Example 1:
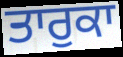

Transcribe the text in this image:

ਤਾਰੁਕਾ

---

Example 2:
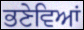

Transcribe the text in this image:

ਭਣੇਵਿਆਂ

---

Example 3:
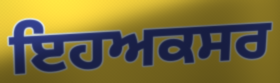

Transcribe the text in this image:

ਇਹਅਕਸਰ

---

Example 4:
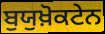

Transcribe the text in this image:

ਬੁਯੁਖ਼ੋਕਟੇਨ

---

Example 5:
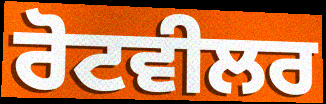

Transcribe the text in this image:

ਰੋਟਵੀਲਰ